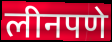
लीनपणे